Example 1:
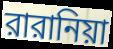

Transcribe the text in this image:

রারানিয়া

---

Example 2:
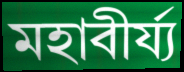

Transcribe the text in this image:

মহাবীর্য্য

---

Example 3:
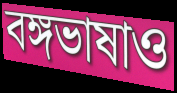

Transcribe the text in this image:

বঙ্গভাষাও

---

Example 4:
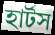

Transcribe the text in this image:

হার্টস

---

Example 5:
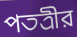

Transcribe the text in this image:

পতত্রীর